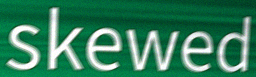
skewed